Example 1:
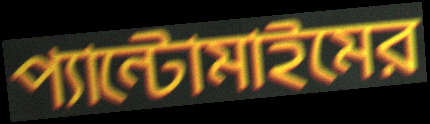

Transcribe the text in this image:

প্যান্টোমাইমের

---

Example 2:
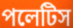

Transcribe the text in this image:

পলেটিস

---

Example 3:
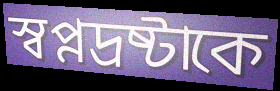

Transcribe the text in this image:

স্বপ্নদ্রষ্টাকে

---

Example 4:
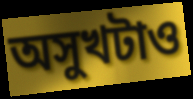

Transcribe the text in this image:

অসুখটাও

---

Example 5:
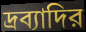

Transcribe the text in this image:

দ্রব্যাদির